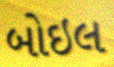
બોઇલ